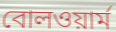
বোলওয়ার্ম